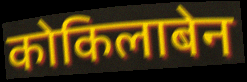
कोकिलाबेन